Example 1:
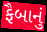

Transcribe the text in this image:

ફૈબાનું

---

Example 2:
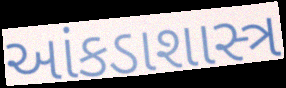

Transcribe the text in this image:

આંકડાશાસ્ત્ર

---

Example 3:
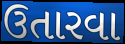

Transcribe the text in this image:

ઉતારવા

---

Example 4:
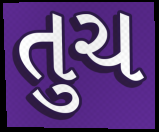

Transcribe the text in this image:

તુચ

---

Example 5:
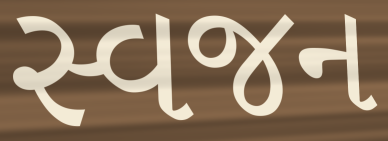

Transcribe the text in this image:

સ્વજન